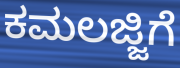
ಕಮಲಜ್ಜಿಗೆ